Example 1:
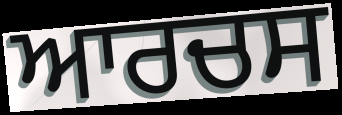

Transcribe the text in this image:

ਆਰਚਸ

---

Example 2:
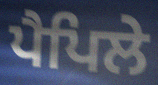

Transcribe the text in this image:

ਪੈਪਿਲੇ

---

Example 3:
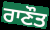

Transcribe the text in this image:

ਰਾਣੌਤ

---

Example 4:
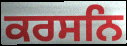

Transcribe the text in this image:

ਕਰਸਨਿ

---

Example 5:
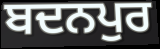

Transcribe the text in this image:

ਬਦਨਪੁਰ